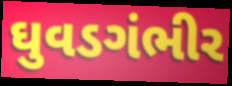
ઘુવડગંભીર